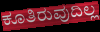
ಕೂತಿರುವುದಿಲ್ಲ